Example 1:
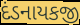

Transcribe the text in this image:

દંડનાયકજી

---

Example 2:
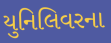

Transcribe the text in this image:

યુનિલિવરના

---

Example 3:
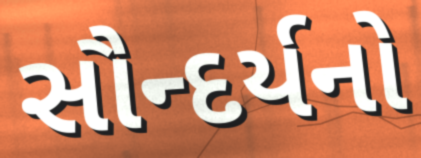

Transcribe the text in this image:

સૌન્દર્યનો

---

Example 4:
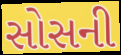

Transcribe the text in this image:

સોસની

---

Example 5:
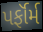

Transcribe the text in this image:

પર્ફૉર્મ